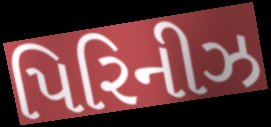
પિરિનીઝ